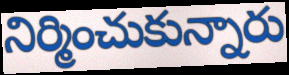
నిర్మించుకున్నారు